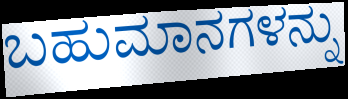
ಬಹುಮಾನಗಳನ್ನು